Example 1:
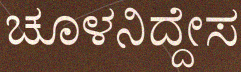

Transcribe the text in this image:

ಚೂಳನಿದ್ದೇಸ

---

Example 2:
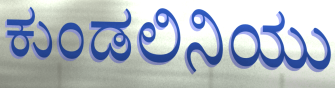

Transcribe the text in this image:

ಕುಂಡಲಿನಿಯು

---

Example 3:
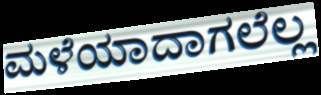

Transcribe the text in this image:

ಮಳೆಯಾದಾಗಲೆಲ್ಲ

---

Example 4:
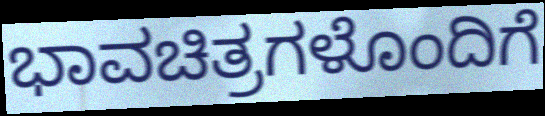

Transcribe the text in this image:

ಭಾವಚಿತ್ರಗಳೊಂದಿಗೆ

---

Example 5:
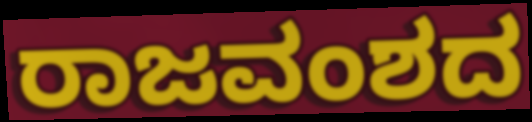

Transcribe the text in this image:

ರಾಜವಂಶದ